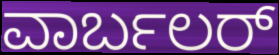
ವಾರ್ಬಲರ್